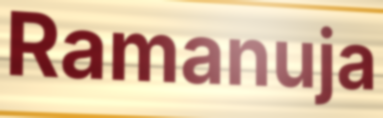
Ramanuja